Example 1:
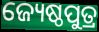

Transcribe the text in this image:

ଜ୍ୟେଷ୍ଠପୁତ୍ର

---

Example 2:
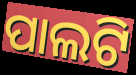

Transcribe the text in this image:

ପାଲଟି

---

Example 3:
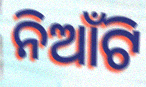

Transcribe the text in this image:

ନିଆଁଟି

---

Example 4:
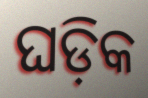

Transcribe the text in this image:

ଘଡ଼ିକ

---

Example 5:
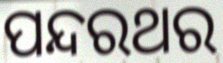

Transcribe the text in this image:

ପନ୍ଦରଥର